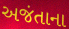
અજંતાના